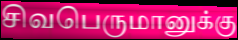
சிவபெருமானுக்கு